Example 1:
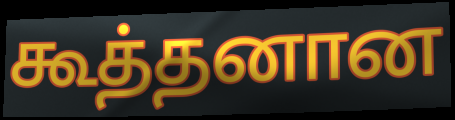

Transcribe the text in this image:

கூத்தனான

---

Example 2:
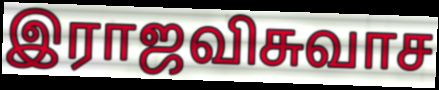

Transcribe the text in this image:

இராஜவிசுவாச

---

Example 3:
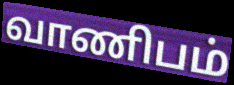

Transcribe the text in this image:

வாணிபம்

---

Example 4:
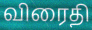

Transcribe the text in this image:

விரைதி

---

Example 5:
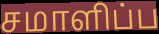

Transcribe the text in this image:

சமாளிப்ப